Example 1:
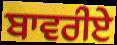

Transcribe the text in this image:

ਬਾਵਰੀਏ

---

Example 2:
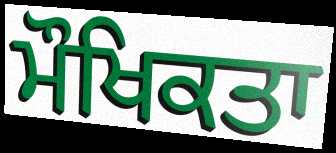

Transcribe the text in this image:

ਮੌਖਿਕਤਾ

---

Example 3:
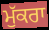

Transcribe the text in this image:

ਮੁੱਕਰਾ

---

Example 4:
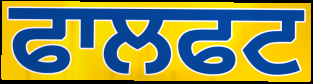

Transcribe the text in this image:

ਫਾਲਫਟ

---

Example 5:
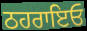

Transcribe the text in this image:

ਠਹਰਾਇਓ